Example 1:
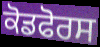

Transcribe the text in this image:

ਕੋਡਫੋਰਸ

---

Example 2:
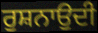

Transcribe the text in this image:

ਰੁਸ਼ਨਾਉਦੀ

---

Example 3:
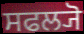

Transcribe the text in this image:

ਸਫਲ੍ਯੋ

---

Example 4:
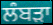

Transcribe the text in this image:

ਲੰਬੜਾ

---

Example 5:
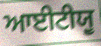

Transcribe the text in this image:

ਆਈਟੀਯੂ